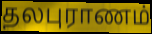
தலபுராணம்